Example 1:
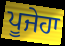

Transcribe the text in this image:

ਪੂਜੇਹਾ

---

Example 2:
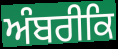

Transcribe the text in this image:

ਅੰਬਰੀਕਿ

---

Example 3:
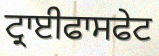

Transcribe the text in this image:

ਟ੍ਰਾਈਫਾਸਫੇਟ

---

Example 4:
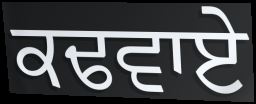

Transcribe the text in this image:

ਕਢਵਾਏ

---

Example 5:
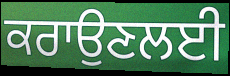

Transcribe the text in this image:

ਕਰਾਉਣਲਈ